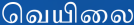
வெயிலை